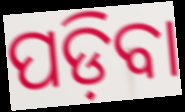
ପଡ଼ିବା